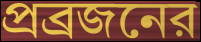
প্রব্রজনের